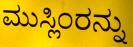
ಮುಸ್ಲಿಂರನ್ನು